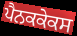
ਪੈਨਕਕੇਕਸ